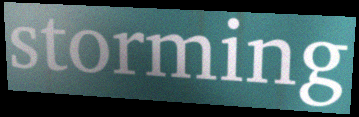
storming